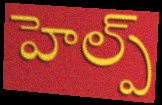
హెల్ప్